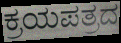
ಕ್ರಯಪತ್ರದ